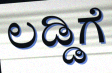
ಲಡ್ಡಿಗೆ